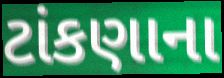
ટાંકણાના